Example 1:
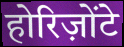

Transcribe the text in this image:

होरिज़ोंटे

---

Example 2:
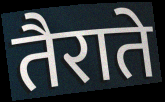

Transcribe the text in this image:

तैराते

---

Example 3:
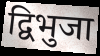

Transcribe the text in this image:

द्विभुजा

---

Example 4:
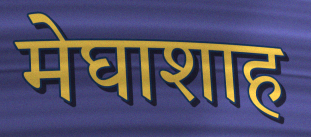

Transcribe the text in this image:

मेघाशाह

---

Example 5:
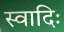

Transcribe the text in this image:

स्वादिः